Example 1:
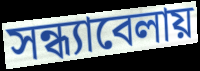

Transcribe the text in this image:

সন্ধ্যাবেলায়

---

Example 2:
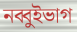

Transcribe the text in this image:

নব্বুইভাগ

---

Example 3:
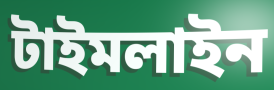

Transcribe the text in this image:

টাইমলাইন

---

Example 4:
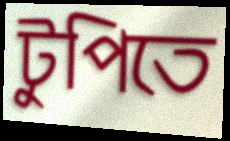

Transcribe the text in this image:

টুপিতে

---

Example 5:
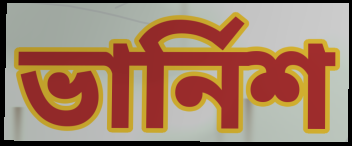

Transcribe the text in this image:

ভার্নিশ